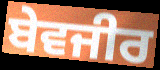
ਬੇਵਜੀਰ